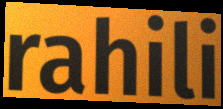
rahili